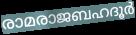
രാമരാജബഹദൂർ